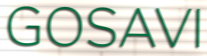
GOSAVI